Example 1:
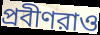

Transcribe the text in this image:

প্রবীণরাও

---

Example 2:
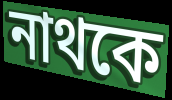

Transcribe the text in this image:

নাথকে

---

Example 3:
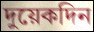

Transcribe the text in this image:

দুয়েকদিন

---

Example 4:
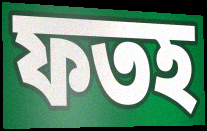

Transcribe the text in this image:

ফতহ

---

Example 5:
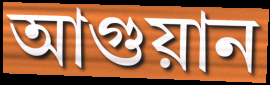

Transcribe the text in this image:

আগুয়ান